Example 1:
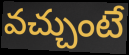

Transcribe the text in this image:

వచ్చుంటే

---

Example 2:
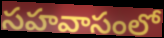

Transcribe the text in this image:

సహవాసంలో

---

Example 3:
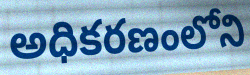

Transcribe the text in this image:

అధికరణంలోని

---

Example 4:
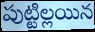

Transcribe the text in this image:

పుట్టిల్లయిన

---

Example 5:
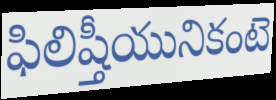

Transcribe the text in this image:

ఫిలిష్తీయునికంటె